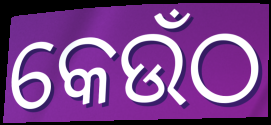
କେଉଁଠ